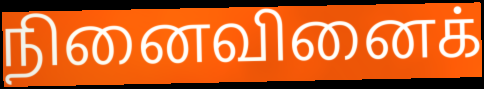
நினைவினைக்